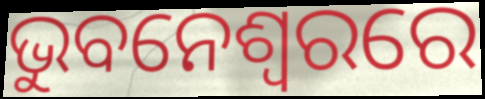
ଭୁବନେଶ୍ଵରରେ